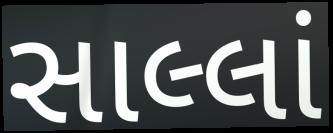
સાલ્લાં